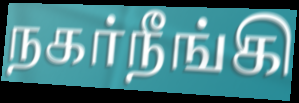
நகர்நீங்கி